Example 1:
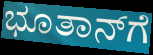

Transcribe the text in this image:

ಭೂತಾನ್‌ಗೆ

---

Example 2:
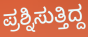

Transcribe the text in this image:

ಪ್ರಶ್ನಿಸುತ್ತಿದ್ದ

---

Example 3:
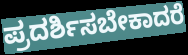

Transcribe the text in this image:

ಪ್ರದರ್ಶಿಸಬೇಕಾದರೆ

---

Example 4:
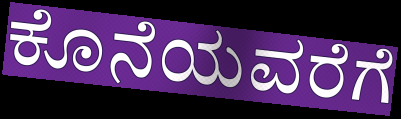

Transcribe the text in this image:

ಕೊನೆಯವರೆಗೆ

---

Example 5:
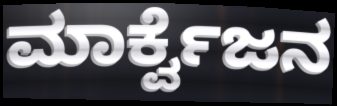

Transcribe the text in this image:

ಮಾರ್ಕ್ವೆಜನ